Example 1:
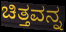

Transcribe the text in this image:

ಚಿತ್ತವನ್ನ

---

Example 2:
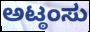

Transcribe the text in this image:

ಅಟ್ಠಂಸು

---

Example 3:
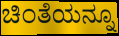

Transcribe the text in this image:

ಚಿಂತೆಯನ್ನೂ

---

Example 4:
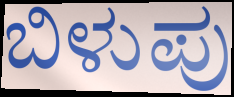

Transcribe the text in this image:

ಬಿಳುಪು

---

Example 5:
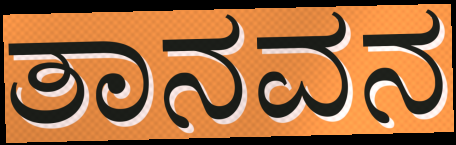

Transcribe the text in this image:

ತಾನವನ